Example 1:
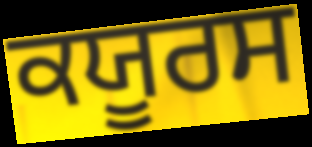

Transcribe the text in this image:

ਕਯੂਰਸ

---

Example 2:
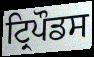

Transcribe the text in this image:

ਟ੍ਰਿਪੌਡਸ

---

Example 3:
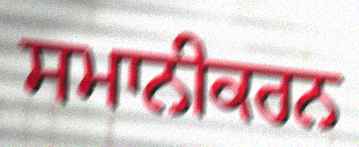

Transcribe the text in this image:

ਸਮਾਨੀਕਰਨ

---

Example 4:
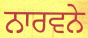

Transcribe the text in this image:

ਨਾਰਵਨੇ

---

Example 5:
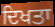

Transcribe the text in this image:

ਦਿਖਤਾ